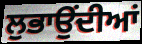
ਲੁਭਾਉਂਦੀਆਂ